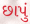
છાપું